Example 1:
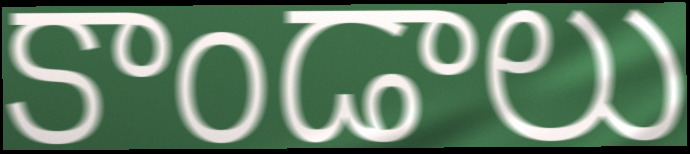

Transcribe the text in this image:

కాండాలు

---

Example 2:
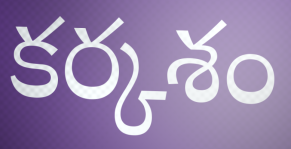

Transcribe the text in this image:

కర్కశం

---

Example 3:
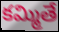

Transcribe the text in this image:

కమ్మితే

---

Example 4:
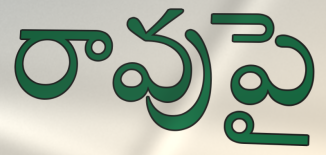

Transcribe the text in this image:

రావుపై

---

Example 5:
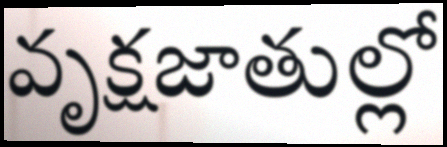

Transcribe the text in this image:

వృక్షజాతుల్లో